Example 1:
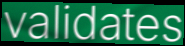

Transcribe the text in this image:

validates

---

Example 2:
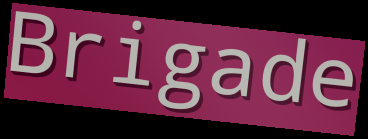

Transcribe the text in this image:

Brigade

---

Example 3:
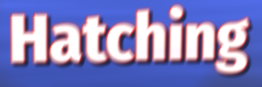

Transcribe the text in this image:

Hatching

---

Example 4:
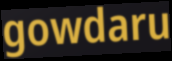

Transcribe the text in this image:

gowdaru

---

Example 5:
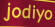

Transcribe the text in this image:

jodiyo